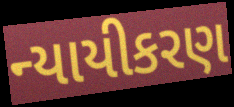
ન્યાયીકરણ